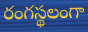
రంగస్థలంగా